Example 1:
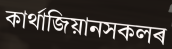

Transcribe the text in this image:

কাৰ্থাজিয়ানসকলৰ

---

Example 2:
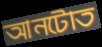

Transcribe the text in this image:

আনটোত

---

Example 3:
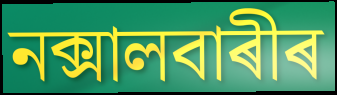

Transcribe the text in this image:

নক্সালবাৰীৰ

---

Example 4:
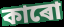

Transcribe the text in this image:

কাৰো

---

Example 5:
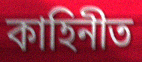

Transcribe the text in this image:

কাহিনীত